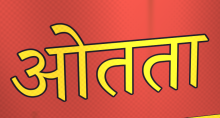
ओतता